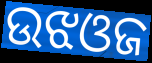
ଉଝଓଜ